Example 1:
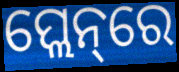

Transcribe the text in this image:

ପ୍ଲେନ୍‌ରେ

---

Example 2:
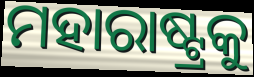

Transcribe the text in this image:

ମହାରାଷ୍ଟ୍ରକୁ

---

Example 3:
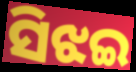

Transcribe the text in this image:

ସିଝଇ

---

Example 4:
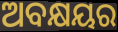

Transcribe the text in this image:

ଅବକ୍ଷୟର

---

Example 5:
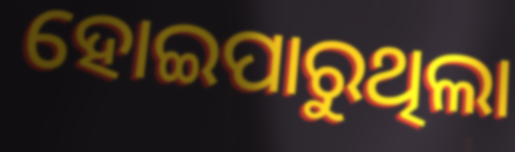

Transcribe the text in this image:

ହୋଇପାରୁଥିଲା